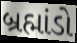
બ્રહ્માંડો